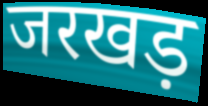
जरखड़